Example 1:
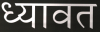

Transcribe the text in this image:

ध्यावत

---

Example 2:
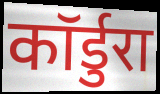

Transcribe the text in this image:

कॉर्डुरा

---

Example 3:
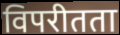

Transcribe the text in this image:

विपरीतता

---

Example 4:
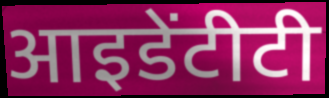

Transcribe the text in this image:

आइडेंटीटी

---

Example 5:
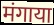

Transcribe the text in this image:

मंगाया